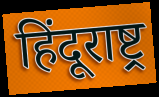
हिंदूराष्ट्र